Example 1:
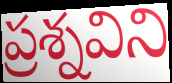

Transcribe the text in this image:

ప్రశ్నవిని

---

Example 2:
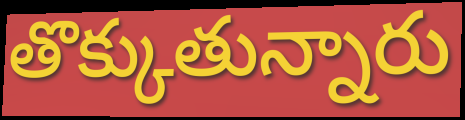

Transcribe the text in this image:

తొక్కుతున్నారు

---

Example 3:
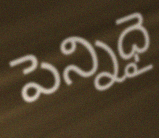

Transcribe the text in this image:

పెన్నిధై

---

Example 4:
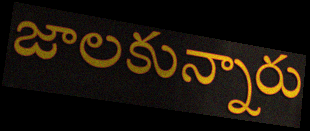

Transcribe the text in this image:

జాలకున్నారు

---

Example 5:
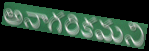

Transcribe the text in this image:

అనాగరికమని